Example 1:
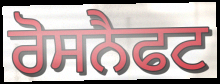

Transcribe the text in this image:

ਰੋਸਨੈਫਟ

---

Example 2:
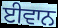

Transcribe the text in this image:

ਈਵਾਨ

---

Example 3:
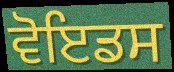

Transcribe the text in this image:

ਵੋਇਡਸ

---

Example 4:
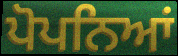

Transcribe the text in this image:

ਪੋਪਨਿਆਂ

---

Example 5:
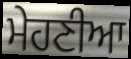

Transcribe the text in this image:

ਮੇਹਣੀਆ